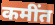
कमींत